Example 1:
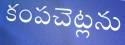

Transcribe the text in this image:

కంపచెట్లను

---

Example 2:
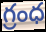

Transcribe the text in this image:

గ్రంధ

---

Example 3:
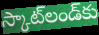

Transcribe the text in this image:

స్కాట్‌లండ్‌కు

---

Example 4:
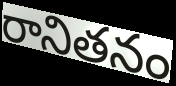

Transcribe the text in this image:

రానితనం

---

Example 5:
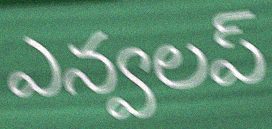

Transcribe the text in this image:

ఎన్వలప్